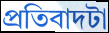
প্রতিবাদটা